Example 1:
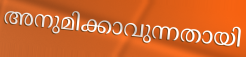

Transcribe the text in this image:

അനുമിക്കാവുന്നതായി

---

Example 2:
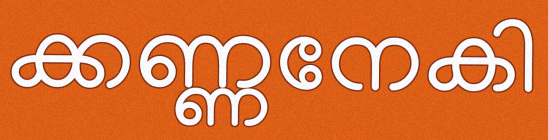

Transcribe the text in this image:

ക്കണ്ണനേകി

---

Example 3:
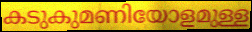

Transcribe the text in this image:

കടുകുമണിയോളമുള്ള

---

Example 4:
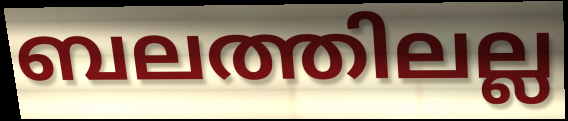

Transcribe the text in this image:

ബലത്തിലല്ല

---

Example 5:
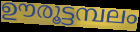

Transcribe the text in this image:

ഊരൂട്ടമ്പലം